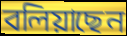
বলিয়াছেন